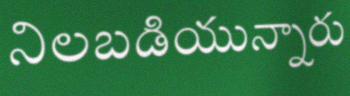
నిలబడియున్నారు